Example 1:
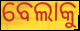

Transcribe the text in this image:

ବେଲାକୁ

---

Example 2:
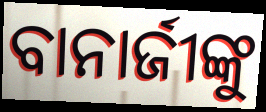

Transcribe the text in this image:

ବାନାର୍ଜୀଙ୍କୁ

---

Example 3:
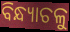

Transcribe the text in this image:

ବିନ୍ଧ୍ୟାଚଳୁ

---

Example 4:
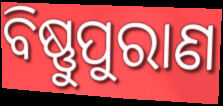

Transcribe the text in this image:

ବିଷ୍ଣୁପୁରାଣ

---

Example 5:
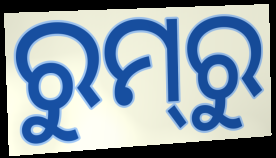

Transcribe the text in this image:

ରୁମ୍‌ରୁ